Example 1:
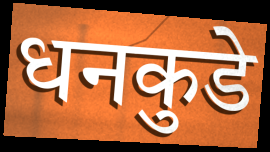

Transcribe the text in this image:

धनकुडे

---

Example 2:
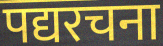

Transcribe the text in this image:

पद्यरचना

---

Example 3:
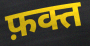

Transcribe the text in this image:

फ़क्त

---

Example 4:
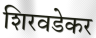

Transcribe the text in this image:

शिरवडेकर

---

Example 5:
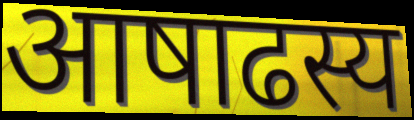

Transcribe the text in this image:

आषाढस्य